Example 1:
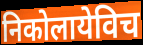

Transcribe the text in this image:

निकोलायेविच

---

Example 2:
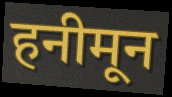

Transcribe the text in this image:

हनीमून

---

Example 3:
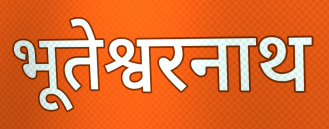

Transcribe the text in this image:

भूतेश्वरनाथ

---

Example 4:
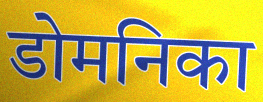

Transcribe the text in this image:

डोमनिका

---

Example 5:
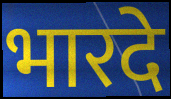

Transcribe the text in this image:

भारदे